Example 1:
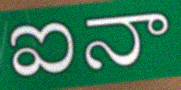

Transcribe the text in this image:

ఐనా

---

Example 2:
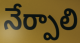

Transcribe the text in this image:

నేర్పాలి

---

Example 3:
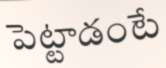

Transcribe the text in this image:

పెట్టాడంటే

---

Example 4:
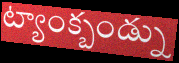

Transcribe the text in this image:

ట్యాంక్బండ్ను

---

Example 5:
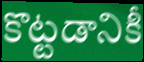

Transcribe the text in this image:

కొట్టడానికీ